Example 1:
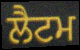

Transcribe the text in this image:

ਲੈਟਮ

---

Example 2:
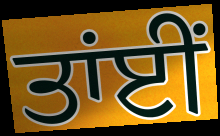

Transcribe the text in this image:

ਤਾਂਈਂ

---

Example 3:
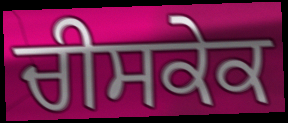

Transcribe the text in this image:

ਚੀਸਕੇਕ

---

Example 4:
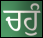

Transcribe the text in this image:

ਚਹੁੰ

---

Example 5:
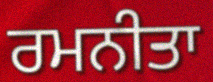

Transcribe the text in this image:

ਰਮਨੀਤਾ